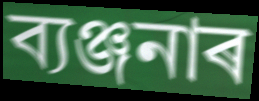
ব্যঞ্জনাৰ